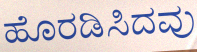
ಹೊರಡಿಸಿದವು